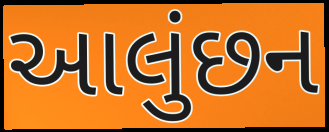
આલુંછન